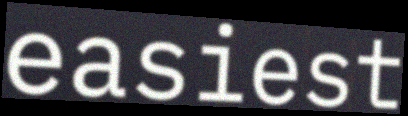
easiest